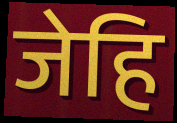
जेहि